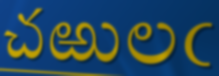
చఱులఁ